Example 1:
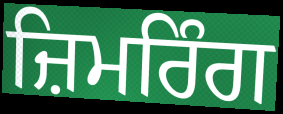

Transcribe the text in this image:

ਜ਼ਿਮਰਿੰਗ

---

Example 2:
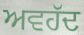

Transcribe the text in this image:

ਅਵਹੱਦ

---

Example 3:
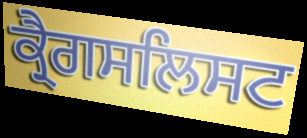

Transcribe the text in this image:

ਕ੍ਰੈਗਸਲਿਸਟ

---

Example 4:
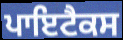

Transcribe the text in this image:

ਪਾਇਟੈਕਸ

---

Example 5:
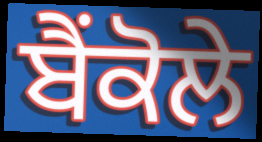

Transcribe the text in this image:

ਬੈਂਕੋਲੇ